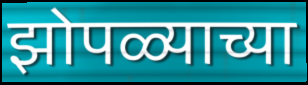
झोपळ्याच्या